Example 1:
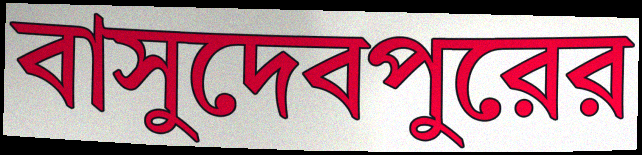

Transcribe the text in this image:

বাসুদেবপুরের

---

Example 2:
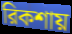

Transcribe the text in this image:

রিকশায়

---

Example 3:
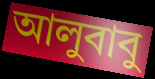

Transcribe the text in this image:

আলুবাবু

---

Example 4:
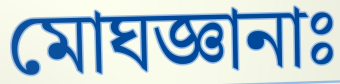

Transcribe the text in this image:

মোঘজ্ঞানাঃ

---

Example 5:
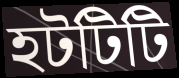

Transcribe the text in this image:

হটটিটি